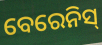
ବେରେନିସ୍